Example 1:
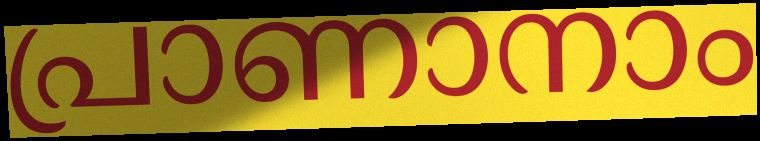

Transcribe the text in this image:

പ്രാണാനാം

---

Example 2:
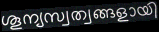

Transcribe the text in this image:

ശൂന്യസ്വത്വങ്ങളായി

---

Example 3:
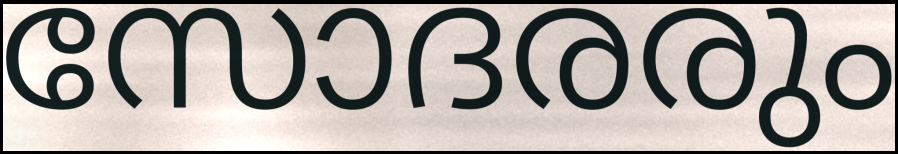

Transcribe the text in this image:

സോദരരും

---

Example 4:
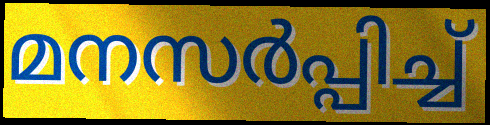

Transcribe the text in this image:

മനസർപ്പിച്ച്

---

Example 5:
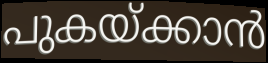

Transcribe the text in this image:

പുകയ്ക്കാൻ